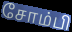
சோம்பி